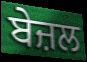
ਬੇਜ਼ਲ